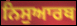
ਨਿਸੁਆਰਥ